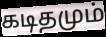
கடிதமும்